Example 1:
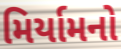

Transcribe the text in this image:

મિર્યામનો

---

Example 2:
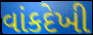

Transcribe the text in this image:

વાંકદેખી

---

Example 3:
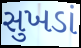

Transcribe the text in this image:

સુખડાં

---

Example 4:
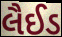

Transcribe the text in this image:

લૈઈડ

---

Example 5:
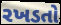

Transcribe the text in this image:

રખડતો